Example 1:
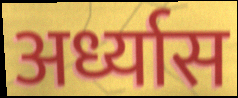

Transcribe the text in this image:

अर्ध्यास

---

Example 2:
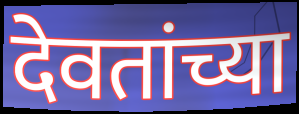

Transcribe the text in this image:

देवतांच्या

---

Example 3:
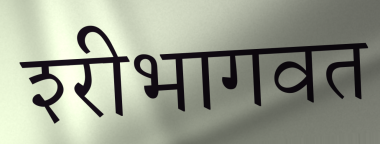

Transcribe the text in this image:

श्रीभागवत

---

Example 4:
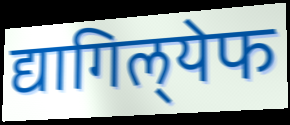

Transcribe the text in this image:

द्यागिल्येफ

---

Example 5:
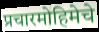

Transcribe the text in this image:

प्रचारमोहिमेचे